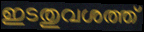
ഇടതുവശത്ത്